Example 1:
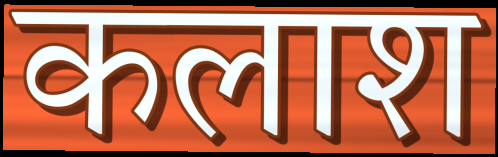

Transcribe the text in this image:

कलाश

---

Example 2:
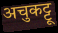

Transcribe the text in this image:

अचुकट्टू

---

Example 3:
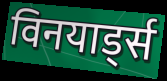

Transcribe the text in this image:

विनयार्ड्स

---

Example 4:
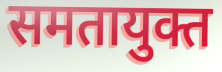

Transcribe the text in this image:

समतायुक्त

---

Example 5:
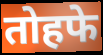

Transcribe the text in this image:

तोहफे